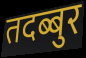
तदब्बुर